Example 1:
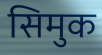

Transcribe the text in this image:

सिमुक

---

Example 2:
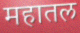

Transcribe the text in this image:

महातल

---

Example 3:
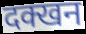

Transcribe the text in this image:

दक्खन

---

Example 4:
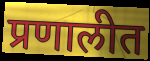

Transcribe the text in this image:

प्रणालीत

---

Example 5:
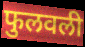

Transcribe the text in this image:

फुलवली